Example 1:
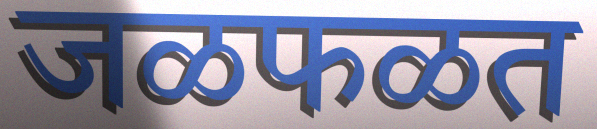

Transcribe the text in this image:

जळफळत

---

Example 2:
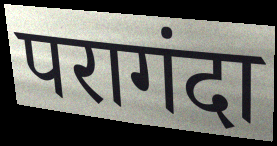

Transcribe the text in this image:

परागंदा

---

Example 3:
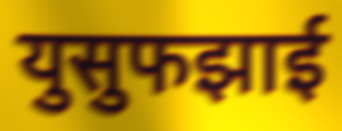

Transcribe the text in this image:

युसुफझाई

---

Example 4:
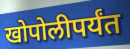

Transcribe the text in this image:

खोपोलीपर्यंत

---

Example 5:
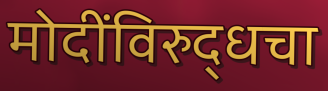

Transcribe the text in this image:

मोदींविरुद्धचा